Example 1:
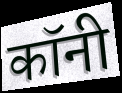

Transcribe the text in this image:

कॉनी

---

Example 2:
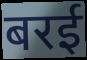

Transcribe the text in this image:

बरई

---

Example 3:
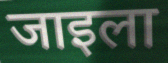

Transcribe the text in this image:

जाइला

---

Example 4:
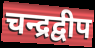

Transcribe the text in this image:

चन्द्रद्वीप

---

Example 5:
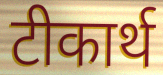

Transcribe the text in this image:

टीकार्थ